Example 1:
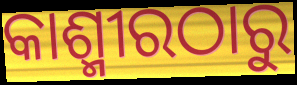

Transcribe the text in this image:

କାଶ୍ମୀରଠାରୁ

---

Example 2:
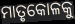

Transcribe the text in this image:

ମାତୃକୋଳକୁ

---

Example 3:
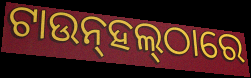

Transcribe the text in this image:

ଟାଉନ୍‌ହଲ୍‌ଠାରେ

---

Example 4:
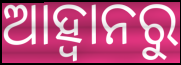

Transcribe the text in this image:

ଆହ୍ବାନରୁ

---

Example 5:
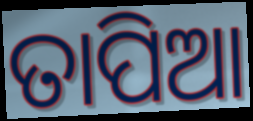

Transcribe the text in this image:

ତାପିଆ